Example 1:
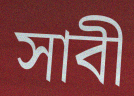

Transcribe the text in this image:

সাবী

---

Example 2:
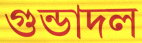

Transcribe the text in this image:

গুন্ডাদল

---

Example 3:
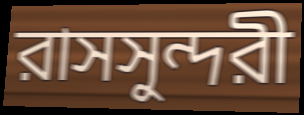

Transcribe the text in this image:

রাসসুন্দরী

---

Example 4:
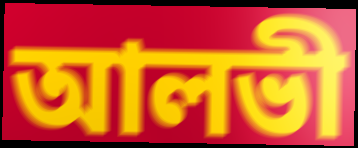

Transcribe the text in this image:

আলভী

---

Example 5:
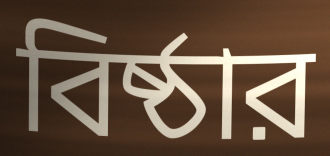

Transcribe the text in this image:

বিষ্ঠার